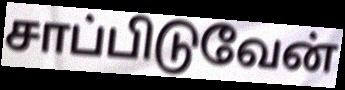
சாப்பிடுவேன்